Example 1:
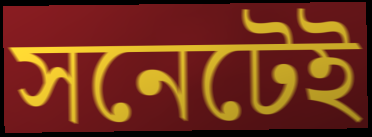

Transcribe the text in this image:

সনেটেই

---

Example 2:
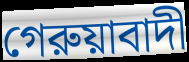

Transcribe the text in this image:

গেরুয়াবাদী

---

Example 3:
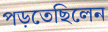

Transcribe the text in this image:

পড়তেছিলেন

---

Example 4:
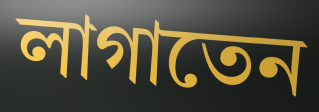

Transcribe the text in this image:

লাগাতেন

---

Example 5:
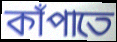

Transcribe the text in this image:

কাঁপাতে